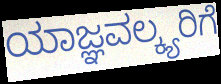
ಯಾಜ್ಞವಲ್ಕ್ಯರಿಗೆ